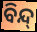
ବିନ୍ଦ୍